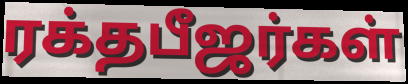
ரக்தபீஜர்கள்